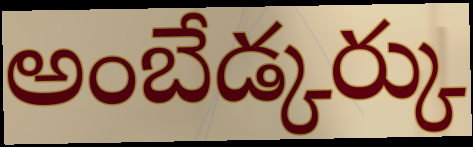
అంబేడ్కర్కు